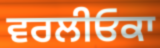
ਵਰਲੀਓਕਾ